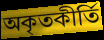
অকৃতকীর্তি